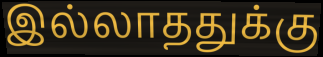
இல்லாததுக்கு